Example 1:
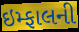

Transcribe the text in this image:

ઇમ્ફાલની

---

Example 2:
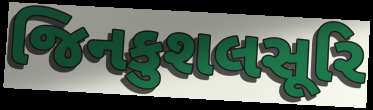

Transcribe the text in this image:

જિનકુશલસૂરિ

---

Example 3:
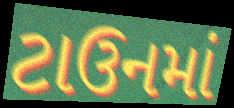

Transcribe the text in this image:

ટાઉનમાં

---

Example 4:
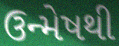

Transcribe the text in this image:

ઉન્મેષથી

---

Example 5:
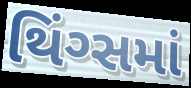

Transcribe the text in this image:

થિંગ્સમાં